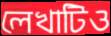
লেখাটিও